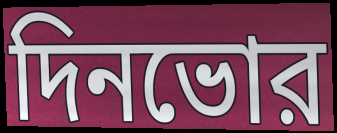
দিনভোর